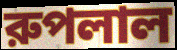
রুপলাল